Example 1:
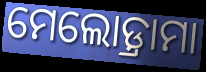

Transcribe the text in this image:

ମେଲୋଡ଼୍ରାମା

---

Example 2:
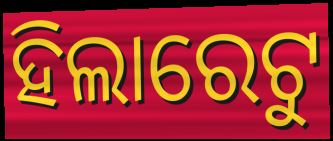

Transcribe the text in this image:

ହିଲାରେଟୁ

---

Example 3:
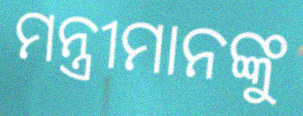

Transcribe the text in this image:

ମନ୍ତ୍ରୀମାନଙ୍କୁ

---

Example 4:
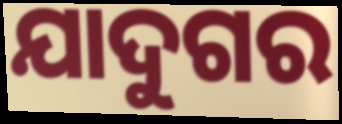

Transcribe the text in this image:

ଯାଦୁଗର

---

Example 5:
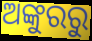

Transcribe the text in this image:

ଅଙ୍କୁରରୁ